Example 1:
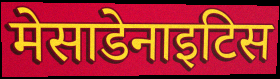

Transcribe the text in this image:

मेसाडेनाइटिस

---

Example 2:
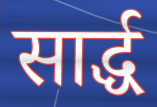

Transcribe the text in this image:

सार्द्ध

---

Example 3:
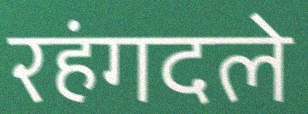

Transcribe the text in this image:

रहंगदले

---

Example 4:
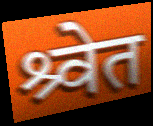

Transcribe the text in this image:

श्र्वेत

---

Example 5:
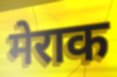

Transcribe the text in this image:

मेराक